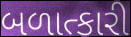
બળાત્કારી